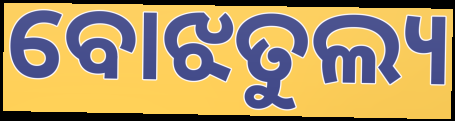
ବୋଝତୁଲ୍ୟ